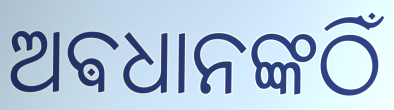
ଅଵଧାନଙ୍କଠିଁ